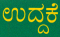
ಉದ್ದಕೆ